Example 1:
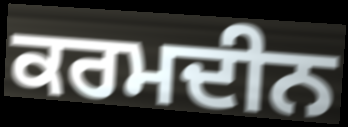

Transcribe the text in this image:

ਕਰਮਦੀਨ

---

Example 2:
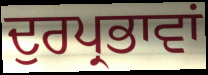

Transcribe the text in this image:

ਦੁਰਪ੍ਰਭਾਵਾਂ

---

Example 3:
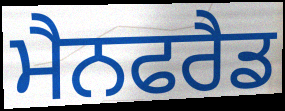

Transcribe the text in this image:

ਮੈਨਫਰੈਡ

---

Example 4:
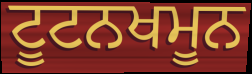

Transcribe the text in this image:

ਟੂਟਨਖਮੂਨ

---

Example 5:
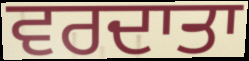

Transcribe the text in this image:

ਵਰਦਾਤਾ